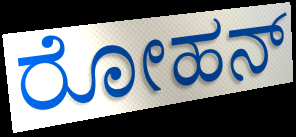
ರೋಹನ್